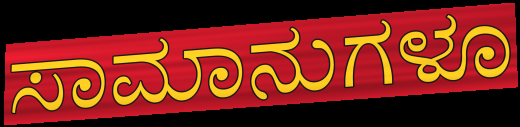
ಸಾಮಾನುಗಳೂ